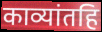
काव्यांतहि